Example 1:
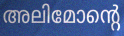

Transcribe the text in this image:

അലിമോന്റെ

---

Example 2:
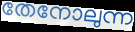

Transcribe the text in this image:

തേനോലുന്ന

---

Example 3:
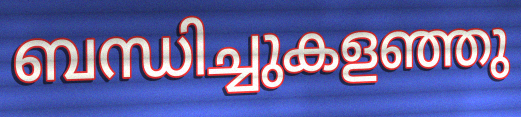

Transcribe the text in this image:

ബന്ധിച്ചുകളഞ്ഞു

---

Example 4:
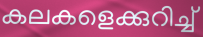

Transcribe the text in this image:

കലകളെക്കുറിച്ച്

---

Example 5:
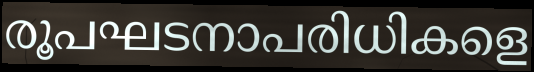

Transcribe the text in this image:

രൂപഘടനാപരിധികളെ